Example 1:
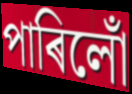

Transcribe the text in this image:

পাৰিলোঁ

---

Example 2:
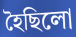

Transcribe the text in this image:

হৈছিলো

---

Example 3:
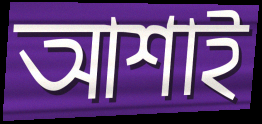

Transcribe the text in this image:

আশাই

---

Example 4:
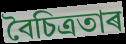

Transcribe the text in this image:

বৈচিত্ৰতাৰ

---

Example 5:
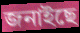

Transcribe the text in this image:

জনাইছে